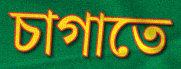
চাগাতে